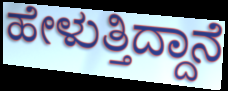
ಹೇಳುತ್ತಿದ್ದಾನೆ